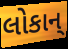
લોકાન્